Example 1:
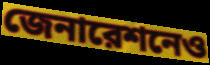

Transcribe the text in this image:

জেনারেশনেও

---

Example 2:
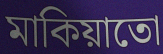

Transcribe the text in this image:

মাকিয়াতো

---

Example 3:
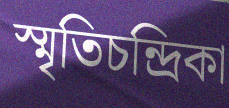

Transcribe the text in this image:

স্মৃতিচন্দ্রিকা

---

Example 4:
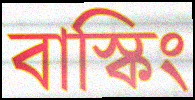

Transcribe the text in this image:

বাস্কিং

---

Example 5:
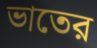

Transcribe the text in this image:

ভাতের